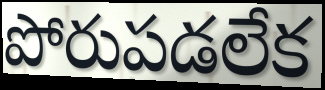
పోరుపడలేక